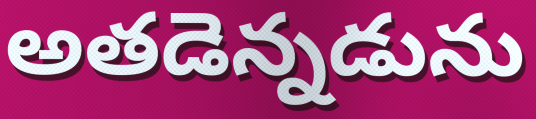
అతడెన్నడును